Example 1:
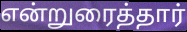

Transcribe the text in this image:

என்றுரைத்தார்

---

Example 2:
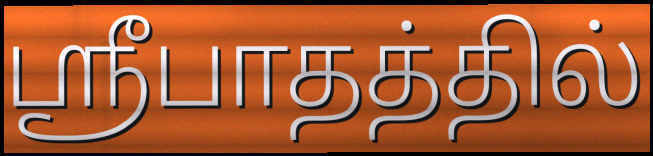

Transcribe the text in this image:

ஸ்ரீபாதத்தில்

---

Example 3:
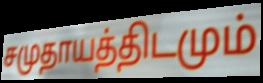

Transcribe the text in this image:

சமுதாயத்திடமும்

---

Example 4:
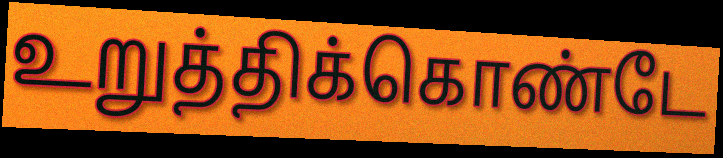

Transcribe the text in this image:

உறுத்திக்கொண்டே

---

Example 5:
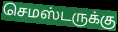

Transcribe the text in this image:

செமஸ்டருக்கு